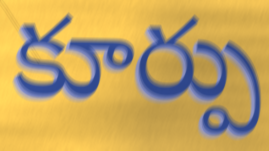
కూర్పు